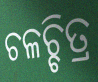
ଚଳଚ୍ଚିତ୍ର